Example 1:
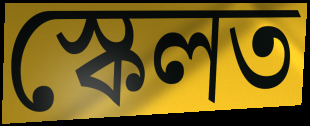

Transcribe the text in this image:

স্কেলত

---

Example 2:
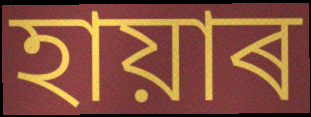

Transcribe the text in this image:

হায়াৰ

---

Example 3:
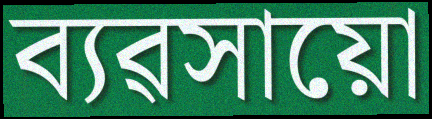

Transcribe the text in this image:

ব্যৱসায়ো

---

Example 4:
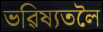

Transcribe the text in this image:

ভৱিষ্যতলৈ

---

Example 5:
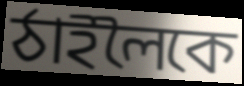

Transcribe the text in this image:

ঠাইলৈকে